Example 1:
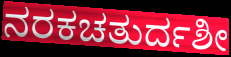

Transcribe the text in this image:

ನರಕಚತುರ್ದಶೀ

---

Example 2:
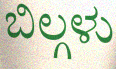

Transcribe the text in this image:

ಬಿಲ್ಗಳು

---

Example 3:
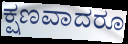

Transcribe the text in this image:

ಕ್ಷಣವಾದರೂ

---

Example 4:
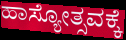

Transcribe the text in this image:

ಹಾಸ್ಯೋತ್ಸವಕ್ಕೆ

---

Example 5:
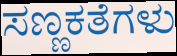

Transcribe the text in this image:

ಸಣ್ಣಕತೆಗಳು